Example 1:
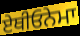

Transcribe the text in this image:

ਏਥੀਓਨੇਮਾ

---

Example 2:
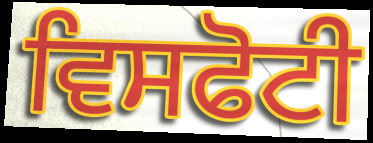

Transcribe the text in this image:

ਵਿਸਫੋਟੀ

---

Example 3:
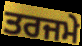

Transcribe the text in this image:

ਤਰਜਮੇ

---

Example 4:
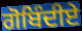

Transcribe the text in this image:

ਗੋਬਿੰਦੀਏ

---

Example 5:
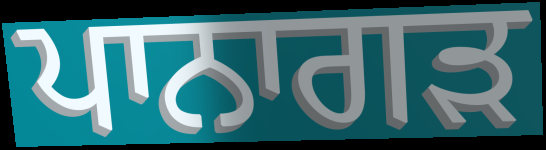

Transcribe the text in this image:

ਪਾਨਾਗੜ